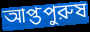
আপ্তপুরুষ